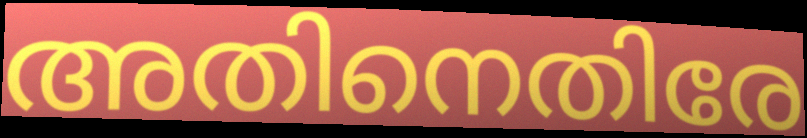
അതിനെതിരേ